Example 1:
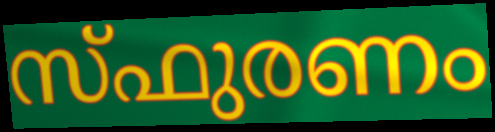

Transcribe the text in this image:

സ്ഫുരണം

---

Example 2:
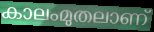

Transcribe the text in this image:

കാലംമുതലാണ്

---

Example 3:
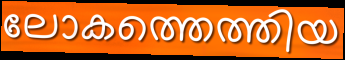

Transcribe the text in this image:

ലോകത്തെത്തിയ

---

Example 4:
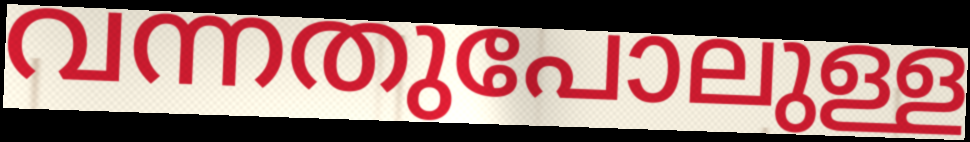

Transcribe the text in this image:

വന്നതുപോലുള്ള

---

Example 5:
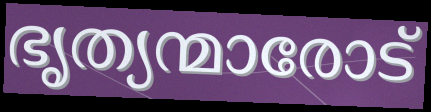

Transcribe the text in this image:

ഭൃത്യന്മാരോട്